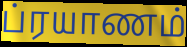
ப்ரயாணம்